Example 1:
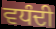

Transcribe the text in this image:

ਵਧੰਦੀ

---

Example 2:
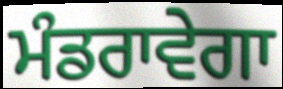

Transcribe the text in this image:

ਮੰਡਰਾਵੇਗਾ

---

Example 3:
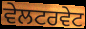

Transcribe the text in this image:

ਵੇਲਟਰਵੇਟ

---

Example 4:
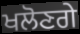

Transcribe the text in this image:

ਖਲੋਣਗੇ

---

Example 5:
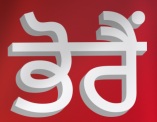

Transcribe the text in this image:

ਭੋਰੈਂ